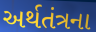
અર્થતંત્રના